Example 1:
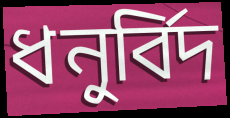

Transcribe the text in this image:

ধনুৰ্বিদ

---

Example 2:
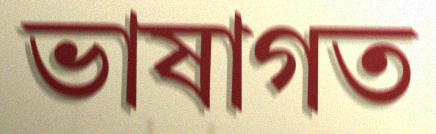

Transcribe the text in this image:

ভাষাগত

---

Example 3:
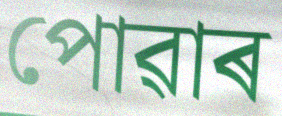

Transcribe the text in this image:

পোৱাৰ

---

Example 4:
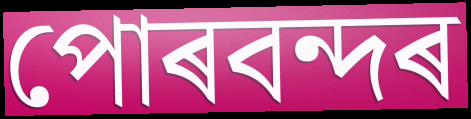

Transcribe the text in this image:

পোৰবন্দৰ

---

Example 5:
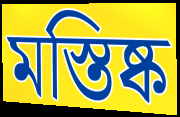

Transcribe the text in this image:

মস্তিষ্ক